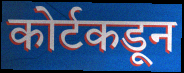
कोर्टकडून